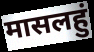
मासलहुं